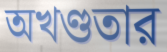
অখণ্ডতার